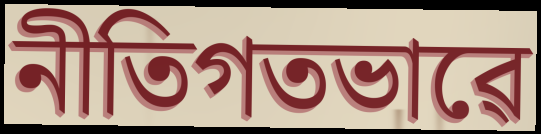
নীতিগতভাৱে